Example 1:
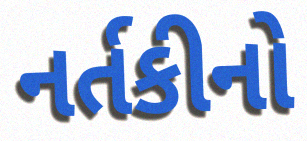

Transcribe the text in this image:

નર્તકીનો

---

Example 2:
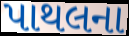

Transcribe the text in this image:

પાથલના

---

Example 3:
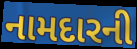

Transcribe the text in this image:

નામદારની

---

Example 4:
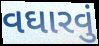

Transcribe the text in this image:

વઘારવું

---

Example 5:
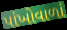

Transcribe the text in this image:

પાંખોવાળાં